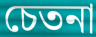
চেতনা